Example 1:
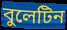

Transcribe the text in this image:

বুলেটিন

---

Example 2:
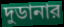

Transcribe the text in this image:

দুডানার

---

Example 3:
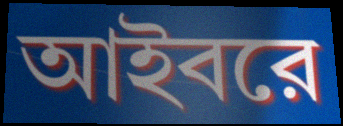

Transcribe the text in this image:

আইবরে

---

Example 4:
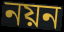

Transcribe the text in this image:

নয়ন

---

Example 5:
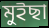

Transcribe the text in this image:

মুইছা